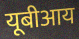
यूबीआय